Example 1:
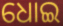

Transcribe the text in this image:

ଧୋଇ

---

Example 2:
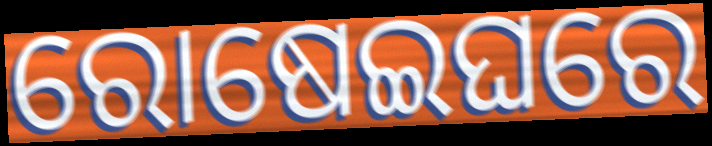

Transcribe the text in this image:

ରୋଷେଇଘରେ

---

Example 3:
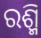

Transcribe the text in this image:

ରଶ୍ମି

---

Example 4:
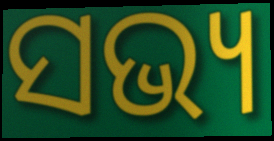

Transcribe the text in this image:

ସଭ୍ୟ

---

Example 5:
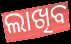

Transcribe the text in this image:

ଲାଖିବ